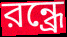
রন্ধ্রে